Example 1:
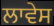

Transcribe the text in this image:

ਲਾਵੇਸ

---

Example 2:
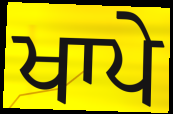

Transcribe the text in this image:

ਖਾਪੇ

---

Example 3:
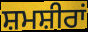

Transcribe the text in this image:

ਸ਼ਮਸ਼ੀਰਾਂ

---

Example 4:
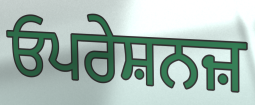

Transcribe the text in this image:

ਓਪਰੇਸ਼ਨਜ਼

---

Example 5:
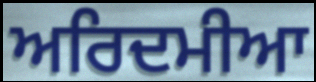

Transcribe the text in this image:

ਅਰਿਦਮੀਆ